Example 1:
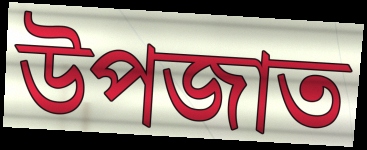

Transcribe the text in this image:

উপজাত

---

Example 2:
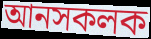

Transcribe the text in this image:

আনসকলক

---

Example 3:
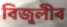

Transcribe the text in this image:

বিজুলীৰ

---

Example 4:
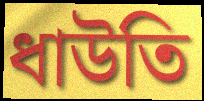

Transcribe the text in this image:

ধাউতি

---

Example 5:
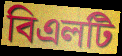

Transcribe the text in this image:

বিএলটি